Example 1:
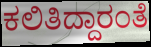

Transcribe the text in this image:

ಕಲಿತಿದ್ದಾರಂತೆ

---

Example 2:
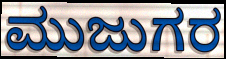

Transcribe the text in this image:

ಮುಜುಗರ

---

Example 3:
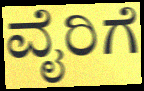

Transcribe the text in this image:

ವೈರಿಗೆ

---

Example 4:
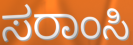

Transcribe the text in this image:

ಸರಾಂಸಿ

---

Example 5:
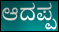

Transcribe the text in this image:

ಆದಪ್ಪ